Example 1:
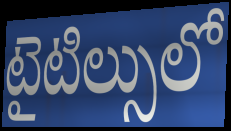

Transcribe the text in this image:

టైటిల్సులో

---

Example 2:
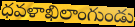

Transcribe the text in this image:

ధవళాఖిలాంగుండు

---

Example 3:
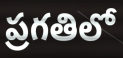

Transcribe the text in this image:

ప్రగతిలో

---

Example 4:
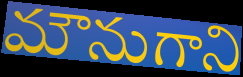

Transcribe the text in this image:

మౌనుగాని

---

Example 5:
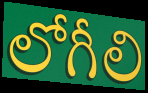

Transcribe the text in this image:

లోగీలి